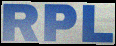
RPL